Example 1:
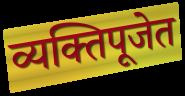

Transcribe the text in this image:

व्यक्तिपूजेत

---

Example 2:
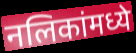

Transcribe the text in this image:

नलिकांमध्ये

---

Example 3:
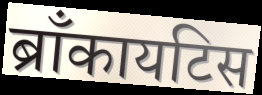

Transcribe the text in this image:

ब्राँकायटिस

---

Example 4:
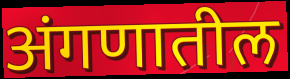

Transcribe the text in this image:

अंगणातील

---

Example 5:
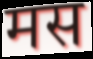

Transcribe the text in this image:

मस